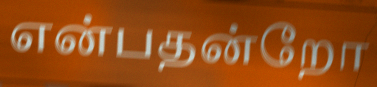
என்பதன்றோ